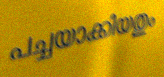
പച്ചയാക്കിയതും